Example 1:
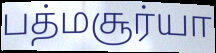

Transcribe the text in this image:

பத்மசூர்யா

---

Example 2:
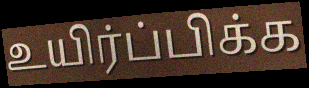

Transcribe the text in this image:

உயிர்ப்பிக்க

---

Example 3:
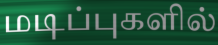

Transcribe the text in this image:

மடிப்புகளில்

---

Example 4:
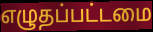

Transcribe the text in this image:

எழுதப்பட்டமை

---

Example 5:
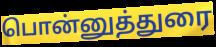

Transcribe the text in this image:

பொன்னுத்துரை